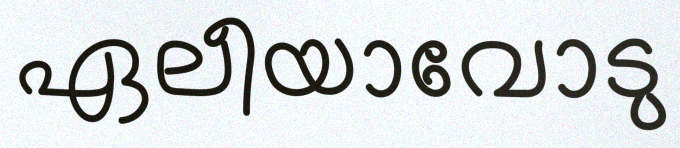
ഏലീയാവോടു